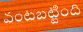
వంటబట్టింది